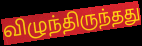
விழுந்திருந்தது